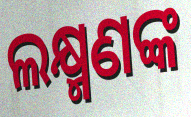
ଲକ୍ଷ୍ମଣଙ୍କ